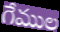
గేముల